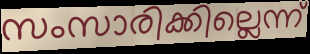
സംസാരിക്കില്ലെന്ന്